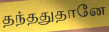
தந்ததுதானே